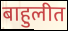
बाहुलीत